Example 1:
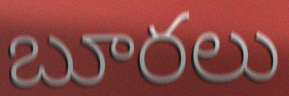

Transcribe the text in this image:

బూరలు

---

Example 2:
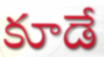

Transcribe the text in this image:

కూడే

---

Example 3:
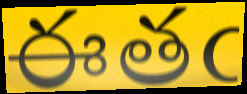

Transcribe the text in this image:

ఈతఁ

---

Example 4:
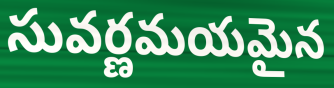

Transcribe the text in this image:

సువర్ణమయమైన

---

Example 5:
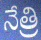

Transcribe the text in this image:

నేత్రి